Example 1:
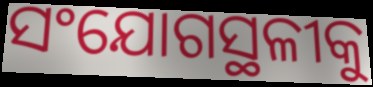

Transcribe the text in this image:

ସଂଯୋଗସ୍ଥଳୀକୁ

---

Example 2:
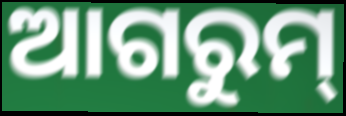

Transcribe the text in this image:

ଆଗରୁମ୍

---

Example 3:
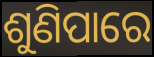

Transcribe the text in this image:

ଶୁଣିପାରେ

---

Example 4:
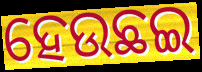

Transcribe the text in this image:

ହେଉଛଇ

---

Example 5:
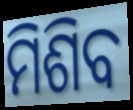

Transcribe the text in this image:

ମିଶିବ